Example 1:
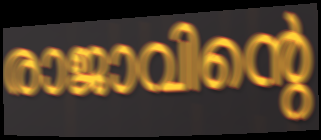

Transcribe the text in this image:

രാജാവിന്റെ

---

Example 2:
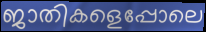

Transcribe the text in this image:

ജാതികളെപ്പോലെ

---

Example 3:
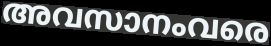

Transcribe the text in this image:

അവസാനംവരെ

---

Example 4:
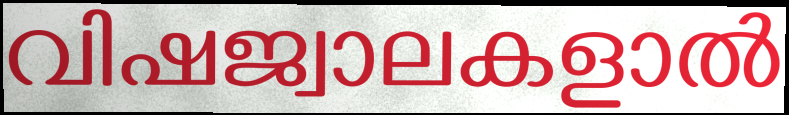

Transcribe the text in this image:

വിഷജ്വാലകളാൽ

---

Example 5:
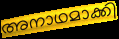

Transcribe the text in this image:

അനാഥമാക്കി